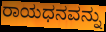
ರಾಯಧನವನ್ನು